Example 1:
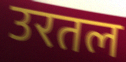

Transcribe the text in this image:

उरतल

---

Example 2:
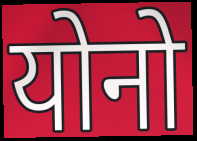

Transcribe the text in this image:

योनो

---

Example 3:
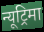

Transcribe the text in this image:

न्यूट्रिमा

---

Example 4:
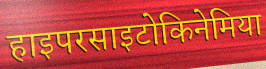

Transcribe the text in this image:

हाइपरसाइटोकिनेमिया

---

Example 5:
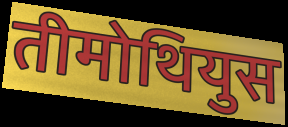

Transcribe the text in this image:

तीमोथियुस